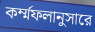
কর্ম্মফলানুসারে